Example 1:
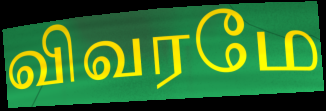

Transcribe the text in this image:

விவரமே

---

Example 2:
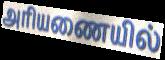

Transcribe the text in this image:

அரியணையில்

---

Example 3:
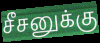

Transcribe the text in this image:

சீசனுக்கு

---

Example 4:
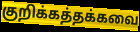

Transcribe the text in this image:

குறிக்கத்தக்கவை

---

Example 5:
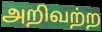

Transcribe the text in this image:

அறிவற்ற